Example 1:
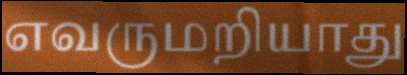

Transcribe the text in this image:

எவருமறியாது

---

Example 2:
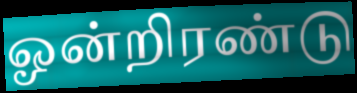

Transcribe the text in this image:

ஓன்றிரண்டு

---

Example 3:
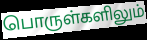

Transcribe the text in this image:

பொருள்களிலும்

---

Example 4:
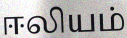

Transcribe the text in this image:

ஈலியம்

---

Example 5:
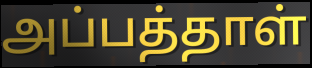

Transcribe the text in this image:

அப்பத்தாள்